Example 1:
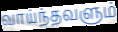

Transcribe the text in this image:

வாய்ந்தவளும்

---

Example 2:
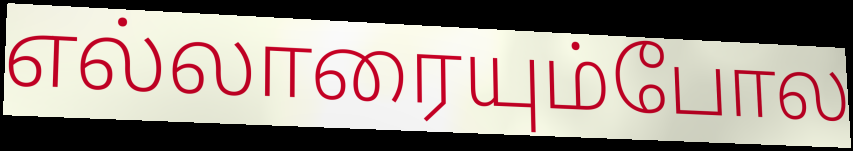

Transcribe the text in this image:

எல்லாரையும்போல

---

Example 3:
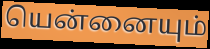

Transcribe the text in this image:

யென்னையும்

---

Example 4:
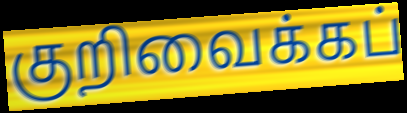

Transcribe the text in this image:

குறிவைக்கப்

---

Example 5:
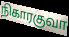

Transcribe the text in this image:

நிகாரகுவா